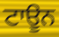
ਟਾਊਨ